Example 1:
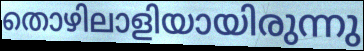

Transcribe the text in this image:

തൊഴിലാളിയായിരുന്നു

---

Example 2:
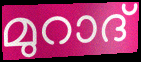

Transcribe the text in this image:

മുറാദ്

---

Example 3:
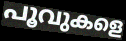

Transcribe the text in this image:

പൂവുകളെ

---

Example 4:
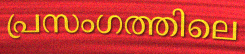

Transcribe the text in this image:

പ്രസംഗത്തിലെ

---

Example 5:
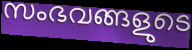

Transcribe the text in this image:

സംഭവങ്ങളുടെ